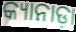
କ୍ୟାନାଡ଼ା